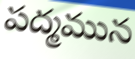
పద్మమున